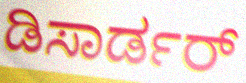
ಡಿಸಾರ್ಡರ್